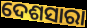
ଦେଶସାରା